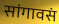
सांगावसं